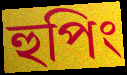
হুপিং